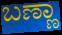
ಬಣ್ಣಾ